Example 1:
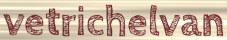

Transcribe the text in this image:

vetrichelvan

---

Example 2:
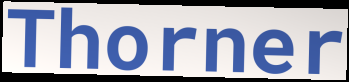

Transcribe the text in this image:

Thorner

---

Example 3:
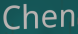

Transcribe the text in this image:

Chen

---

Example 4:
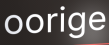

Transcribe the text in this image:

oorige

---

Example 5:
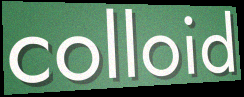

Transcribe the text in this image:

colloid